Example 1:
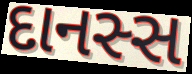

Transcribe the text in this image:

દાનસ્સ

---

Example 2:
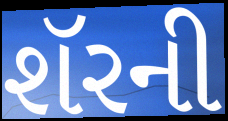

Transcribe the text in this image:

શૅરની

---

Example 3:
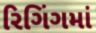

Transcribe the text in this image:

રિગિંગમાં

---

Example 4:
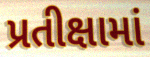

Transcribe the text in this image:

પ્રતીક્ષામાં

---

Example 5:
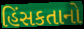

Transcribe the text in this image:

હિંસકતાનો